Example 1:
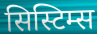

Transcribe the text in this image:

सिस्टिम्स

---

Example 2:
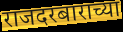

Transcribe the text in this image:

राजदरबाराच्या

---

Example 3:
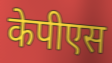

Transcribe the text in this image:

केपीएस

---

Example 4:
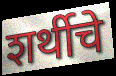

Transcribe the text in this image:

शर्थीचे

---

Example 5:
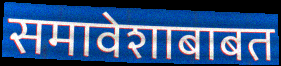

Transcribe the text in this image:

समावेशाबाबत